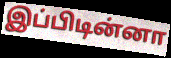
இப்பிடின்னா